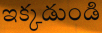
ఇక్కడుండి